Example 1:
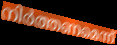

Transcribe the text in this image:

നിർത്തണമെന്ന്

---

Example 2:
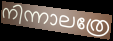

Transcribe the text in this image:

നിന്നാലത്രേ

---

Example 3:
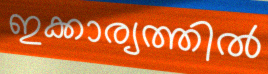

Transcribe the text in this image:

ഇക്കാര്യത്തിൽ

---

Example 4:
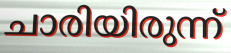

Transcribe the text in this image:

ചാരിയിരുന്ന്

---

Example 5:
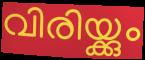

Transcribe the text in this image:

വിരിയ്ക്കും